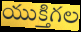
యుక్తిగల